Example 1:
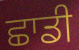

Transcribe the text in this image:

ਛਾਡੀ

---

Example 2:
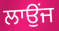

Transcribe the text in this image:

ਲਾਉਂਜ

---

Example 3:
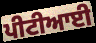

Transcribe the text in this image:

ਪੀਟੀਆਈ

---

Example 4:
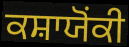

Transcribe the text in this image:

ਕਸ਼ਾਯੋਂਕੀ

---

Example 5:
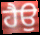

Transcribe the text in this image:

ਹੈਉ